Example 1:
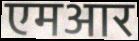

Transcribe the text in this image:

एमआर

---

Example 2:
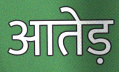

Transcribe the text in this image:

आतेड़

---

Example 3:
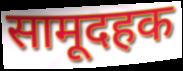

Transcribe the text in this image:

सामूदहक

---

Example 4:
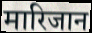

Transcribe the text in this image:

मारिजान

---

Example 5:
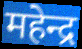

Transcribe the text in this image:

महेन्द्र